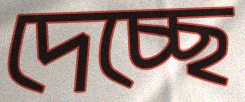
দেচ্ছে